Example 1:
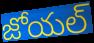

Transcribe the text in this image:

జోయల్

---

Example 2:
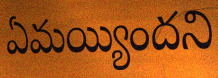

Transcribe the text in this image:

ఏమయ్యిందని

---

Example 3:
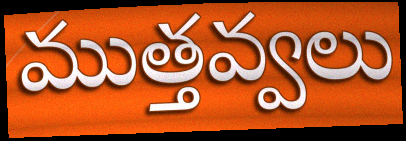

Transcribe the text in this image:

ముత్తవ్వలు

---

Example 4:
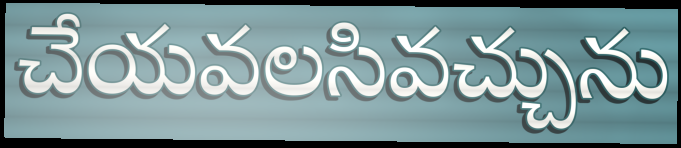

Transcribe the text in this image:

చేయవలసివచ్చును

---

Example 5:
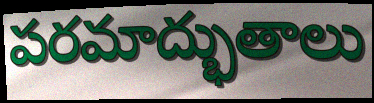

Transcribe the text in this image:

పరమాద్భుతాలు